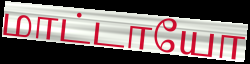
மாட்டாயோ